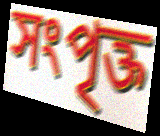
সংপৃক্ত